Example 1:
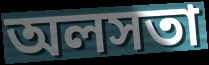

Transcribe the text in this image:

অলসতা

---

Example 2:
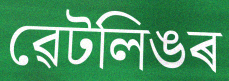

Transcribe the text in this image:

ৱেটলিঙৰ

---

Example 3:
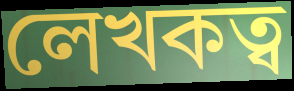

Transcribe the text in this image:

লেখকত্ব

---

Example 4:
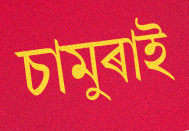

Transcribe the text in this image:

চামুৰাই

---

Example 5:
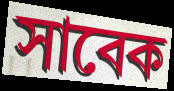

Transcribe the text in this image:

সাবেক